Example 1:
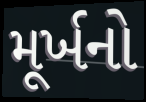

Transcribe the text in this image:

મૂર્ખનો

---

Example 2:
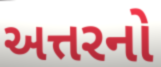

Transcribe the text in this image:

અત્તરનો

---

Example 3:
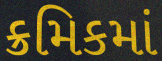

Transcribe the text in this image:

ક્રમિકમાં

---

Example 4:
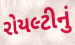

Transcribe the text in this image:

રોયલ્ટીનું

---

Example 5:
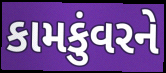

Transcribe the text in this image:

કામકુંવરને